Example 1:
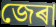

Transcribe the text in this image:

জেৰা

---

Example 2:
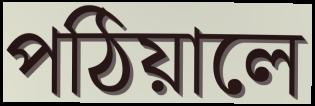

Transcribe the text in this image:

পঠিয়ালে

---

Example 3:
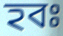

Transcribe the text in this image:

হবঃ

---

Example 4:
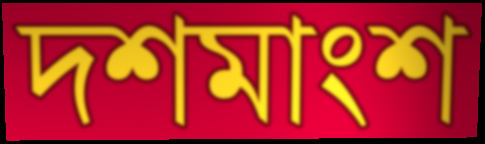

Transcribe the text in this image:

দশমাংশ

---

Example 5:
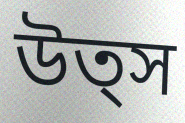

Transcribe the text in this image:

উত্স